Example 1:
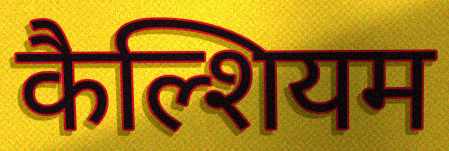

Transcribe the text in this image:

कैल्शियम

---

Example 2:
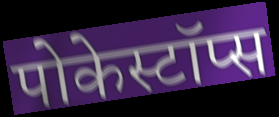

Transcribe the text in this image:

पोकेस्टॉप्स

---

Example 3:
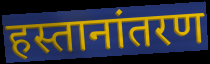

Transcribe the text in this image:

हस्तानांतरण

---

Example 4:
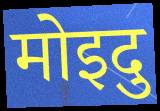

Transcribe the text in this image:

मोइदु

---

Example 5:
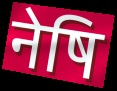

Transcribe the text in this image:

नेषि